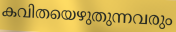
കവിതയെഴുതുന്നവരും